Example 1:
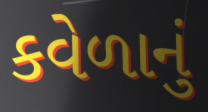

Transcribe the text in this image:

કવેળાનું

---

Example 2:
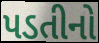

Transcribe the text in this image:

પડતીનો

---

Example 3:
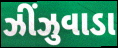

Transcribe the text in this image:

ઝીંઝુવાડા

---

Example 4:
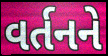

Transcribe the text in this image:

વર્તનને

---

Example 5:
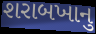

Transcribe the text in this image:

શરાબખાનુ